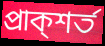
প্রাক্‌শর্ত